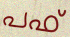
പഫ്